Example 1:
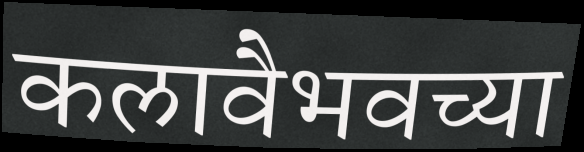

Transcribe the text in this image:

कलावैभवच्या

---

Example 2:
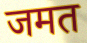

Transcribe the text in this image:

जमत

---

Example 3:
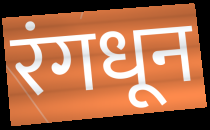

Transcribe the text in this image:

रंगधून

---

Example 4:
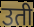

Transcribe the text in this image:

उती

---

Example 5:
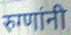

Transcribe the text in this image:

रुग्णांनी